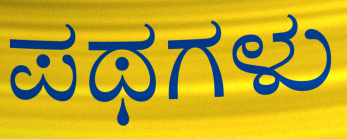
ಪಥಗಳು